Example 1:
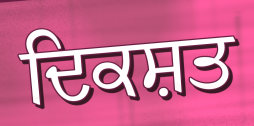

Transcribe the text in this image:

ਦਿਕਸ਼ਤ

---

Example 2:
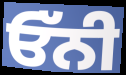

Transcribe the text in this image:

ਓੱਨੀ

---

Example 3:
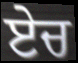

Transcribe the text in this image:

ਏਚ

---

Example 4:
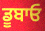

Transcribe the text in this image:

ਡੂਬਾਓ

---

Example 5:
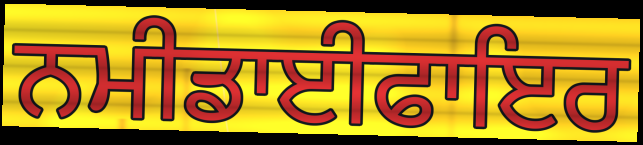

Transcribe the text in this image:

ਨਮੀਡਾਈਫਾਇਰ